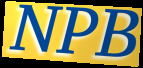
NPB